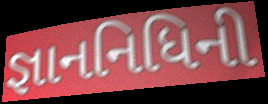
જ્ઞાનનિધિની